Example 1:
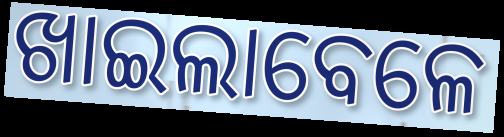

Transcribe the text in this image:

ଖାଇଲାବେଳେ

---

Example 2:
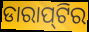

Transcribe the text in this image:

ଡାରାପ୍‌ଟିର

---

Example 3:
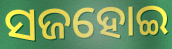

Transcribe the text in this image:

ସଜହୋଇ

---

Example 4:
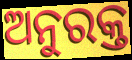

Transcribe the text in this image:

ଅନୁରକ୍ତ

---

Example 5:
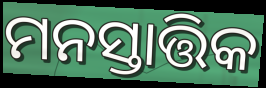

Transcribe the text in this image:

ମନସ୍ତାତ୍ତିକ